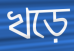
খড়ে